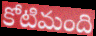
కోటిమంది